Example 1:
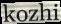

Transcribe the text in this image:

kozhi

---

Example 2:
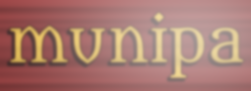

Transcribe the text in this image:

munipa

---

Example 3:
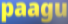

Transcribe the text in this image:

paagu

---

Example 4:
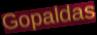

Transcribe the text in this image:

Gopaldas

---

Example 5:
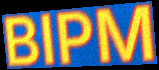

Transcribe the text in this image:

BIPM